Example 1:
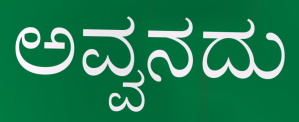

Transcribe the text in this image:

ಅವ್ವನದು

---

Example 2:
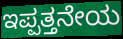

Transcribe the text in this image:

ಇಪ್ಪತ್ತನೇಯ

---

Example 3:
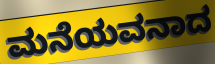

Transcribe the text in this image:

ಮನೆಯವನಾದ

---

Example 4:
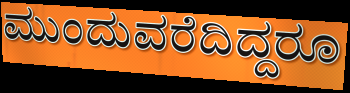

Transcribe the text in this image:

ಮುಂದುವರೆದಿದ್ದರೂ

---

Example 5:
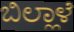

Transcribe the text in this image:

ಬಿಲ್ಲಾಳೆ